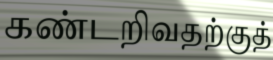
கண்டறிவதற்குத்